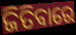
ଜିତିବାରେ